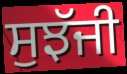
ਸੁਝੱਜੀ